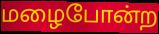
மழைபோன்ற